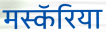
मस्कॅरिया